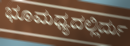
ಭೂಮಧ್ಯದಲ್ಲಿರ್ದು